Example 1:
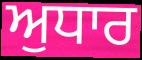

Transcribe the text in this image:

ਅੁਧਾਰ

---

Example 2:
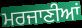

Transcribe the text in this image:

ਮਰਜਾਣੀਆਂ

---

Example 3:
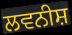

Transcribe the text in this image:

ਲਵਨੀਸ਼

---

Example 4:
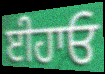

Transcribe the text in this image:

ਈਹਾਓ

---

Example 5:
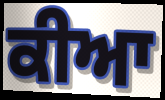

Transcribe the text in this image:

ਕੀਆ